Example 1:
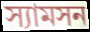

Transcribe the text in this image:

স্যামসন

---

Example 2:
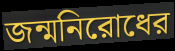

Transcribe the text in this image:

জন্মনিরোধের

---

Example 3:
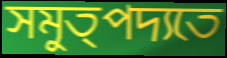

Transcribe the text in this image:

সমুত্পদ্যতে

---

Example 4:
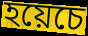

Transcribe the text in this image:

হয়েচে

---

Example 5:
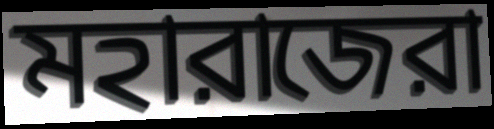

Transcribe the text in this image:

মহারাজেরা